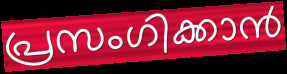
പ്രസംഗിക്കാൻ